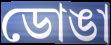
ডোঙা